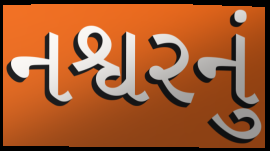
નશ્વરનું